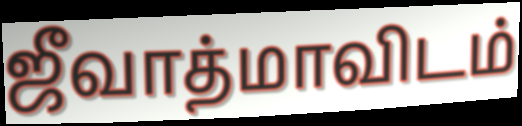
ஜீவாத்மாவிடம்